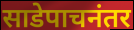
साडेपाचनंतर